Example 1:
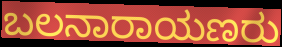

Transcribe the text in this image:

ಬಲನಾರಾಯಣರು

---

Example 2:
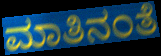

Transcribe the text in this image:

ಮಾತಿನಂತೆ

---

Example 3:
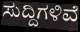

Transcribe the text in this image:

ಸುದ್ದಿಗಳಿವೆ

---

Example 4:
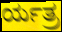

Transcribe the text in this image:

ರ್ಯತ್ರ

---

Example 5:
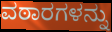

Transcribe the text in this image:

ವಠಾರಗಳನ್ನು